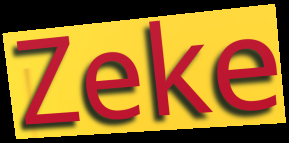
Zeke